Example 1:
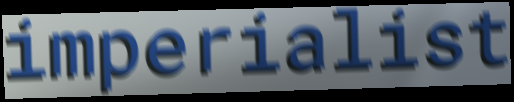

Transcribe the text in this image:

imperialist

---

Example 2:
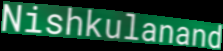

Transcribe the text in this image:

Nishkulanand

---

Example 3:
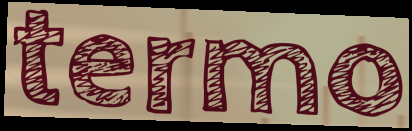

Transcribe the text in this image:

termo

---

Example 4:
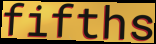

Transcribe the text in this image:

fifths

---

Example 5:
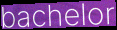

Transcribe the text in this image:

bachelor